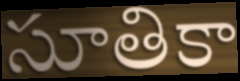
సూతికా